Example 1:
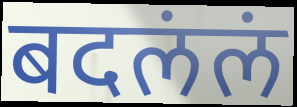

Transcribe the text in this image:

बदलंलं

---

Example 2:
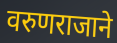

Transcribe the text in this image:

वरुणराजाने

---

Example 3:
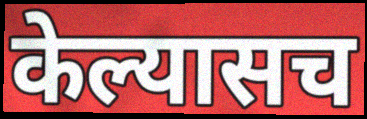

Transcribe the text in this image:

केल्यासच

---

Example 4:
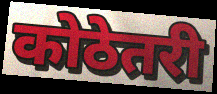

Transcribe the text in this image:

कोठेतरी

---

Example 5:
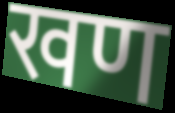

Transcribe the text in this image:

खण